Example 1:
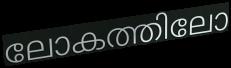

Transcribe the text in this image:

ലോകത്തിലോ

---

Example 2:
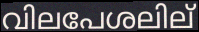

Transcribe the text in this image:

വിലപേശലില്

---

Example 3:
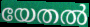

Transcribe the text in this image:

യേതൽ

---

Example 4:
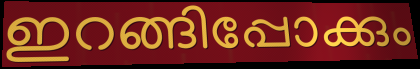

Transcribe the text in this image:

ഇറങ്ങിപ്പോക്കും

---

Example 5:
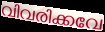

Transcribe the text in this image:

വിവരിക്കവേ